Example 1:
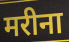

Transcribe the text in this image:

मरीना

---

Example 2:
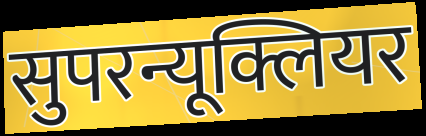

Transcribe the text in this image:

सुपरन्यूक्लियर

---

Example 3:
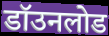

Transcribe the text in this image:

डॉउनलोड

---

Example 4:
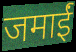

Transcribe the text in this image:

जमाईं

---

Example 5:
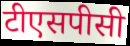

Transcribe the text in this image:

टीएसपीसी